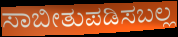
ಸಾಬೀತುಪಡಿಸಬಲ್ಲ